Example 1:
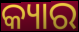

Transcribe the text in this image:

କ୍ୟାର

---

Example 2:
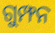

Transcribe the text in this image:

ଗୁମ୍ଫନ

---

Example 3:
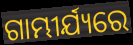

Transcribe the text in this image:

ଗାମ୍ଭୀର୍ଯ୍ୟରେ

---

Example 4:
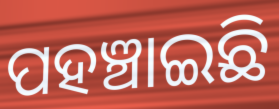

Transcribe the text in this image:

ପହଞ୍ଚାଇଛି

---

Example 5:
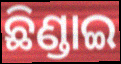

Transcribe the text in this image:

ଛିଣ୍ଡାଇ